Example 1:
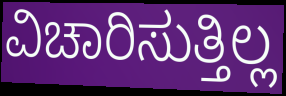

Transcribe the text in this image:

ವಿಚಾರಿಸುತ್ತಿಲ್ಲ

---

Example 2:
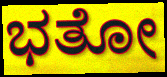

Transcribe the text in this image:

ಭತೋ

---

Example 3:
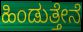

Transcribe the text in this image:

ಹಿಂಡುತ್ತೇನೆ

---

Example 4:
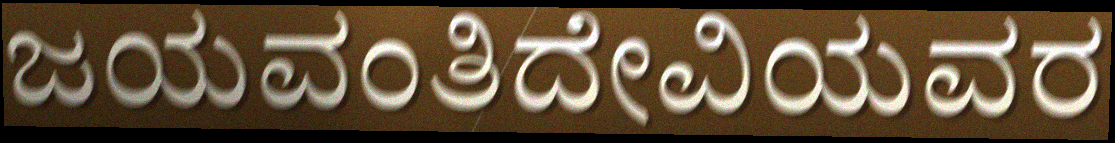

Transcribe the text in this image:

ಜಯವಂತಿದೇವಿಯವರ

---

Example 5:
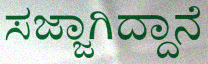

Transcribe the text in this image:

ಸಜ್ಜಾಗಿದ್ದಾನೆ